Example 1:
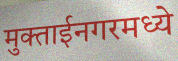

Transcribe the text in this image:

मुक्ताईनगरमध्ये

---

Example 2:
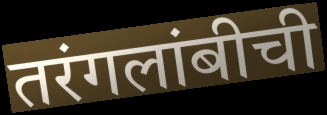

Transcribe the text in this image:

तरंगलांबीची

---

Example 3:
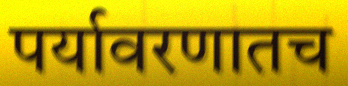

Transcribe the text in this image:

पर्यावरणातच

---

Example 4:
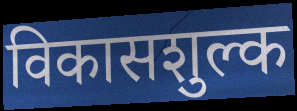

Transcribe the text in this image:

विकासशुल्क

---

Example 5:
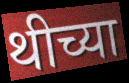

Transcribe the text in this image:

थीच्या